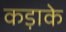
कड़ाके